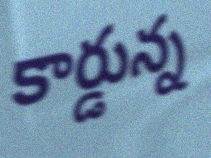
కార్డున్న